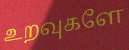
உறவுகளே